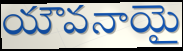
యౌవనాయై